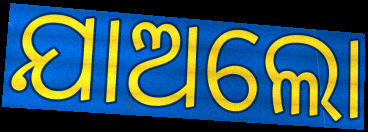
ଯାଅଲୋ